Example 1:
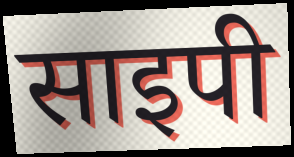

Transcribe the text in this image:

साइपी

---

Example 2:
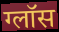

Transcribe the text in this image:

ग्लॉस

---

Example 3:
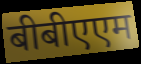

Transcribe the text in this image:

बीबीएएम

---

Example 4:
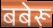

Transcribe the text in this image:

बबेरू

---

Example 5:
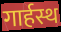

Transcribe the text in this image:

गार्हस्थ